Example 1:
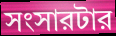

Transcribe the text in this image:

সংসারটার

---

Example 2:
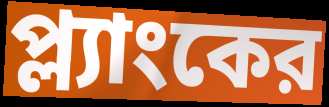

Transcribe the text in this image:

প্ল্যাংকের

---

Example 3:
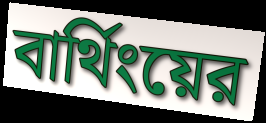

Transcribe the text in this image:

বার্থিংয়ের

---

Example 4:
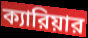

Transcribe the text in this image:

ক্যারিয়ার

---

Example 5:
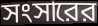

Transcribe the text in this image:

সংসারের